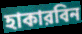
হাকারবিন